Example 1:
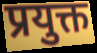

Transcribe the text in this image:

प्रयुक्त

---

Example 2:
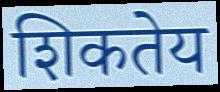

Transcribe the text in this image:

शिकतेय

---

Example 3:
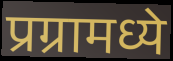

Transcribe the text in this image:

प्रग्रामध्ये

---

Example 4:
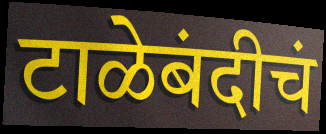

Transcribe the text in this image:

टाळेबंदीचं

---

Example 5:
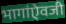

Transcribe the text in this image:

भागांऐवजी